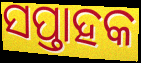
ସପ୍ତାହକ